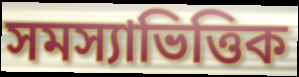
সমস্যাভিত্তিক